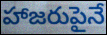
హాజరుపైనే